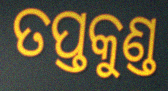
ତପ୍ତକୁଣ୍ଡ